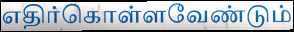
எதிர்கொள்ளவேண்டும்